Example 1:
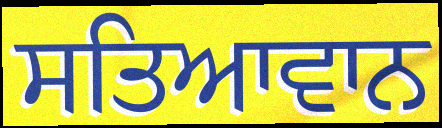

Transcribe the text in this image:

ਸਤਿਆਵਾਨ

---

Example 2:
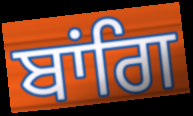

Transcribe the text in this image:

ਬਾਂਗਿ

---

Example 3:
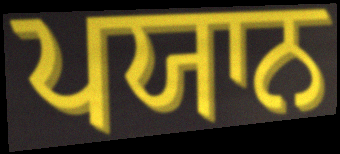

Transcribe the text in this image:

ਪਯਾਨ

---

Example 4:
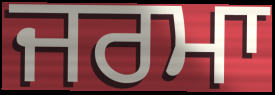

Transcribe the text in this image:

ਜਰਮਾ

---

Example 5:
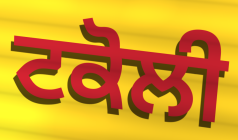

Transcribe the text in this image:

ਟਕੋਲੀ